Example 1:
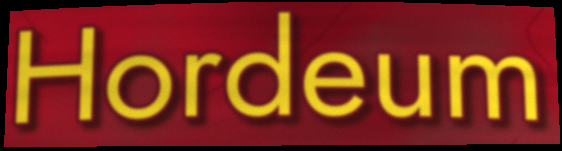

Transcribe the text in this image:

Hordeum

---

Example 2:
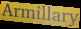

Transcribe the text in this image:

Armillary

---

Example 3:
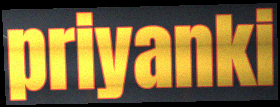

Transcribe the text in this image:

priyanki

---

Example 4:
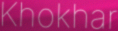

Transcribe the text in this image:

Khokhar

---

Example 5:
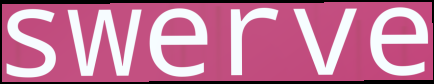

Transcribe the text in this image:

swerve